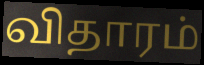
விதாரம்